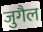
जुगैल